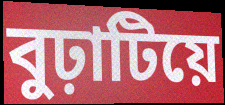
বুঢ়াটিয়ে